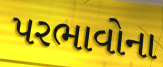
પરભાવોના